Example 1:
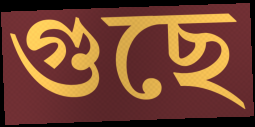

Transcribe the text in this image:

গুছে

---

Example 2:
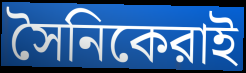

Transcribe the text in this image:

সৈনিকেরাই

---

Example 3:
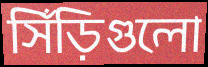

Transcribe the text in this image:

সিঁড়িগুলো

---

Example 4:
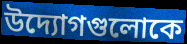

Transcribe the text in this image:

উদ্যোগগুলোকে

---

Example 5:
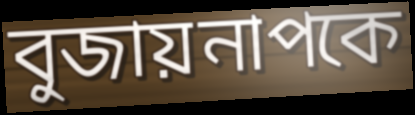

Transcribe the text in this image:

বুজায়নাপকে